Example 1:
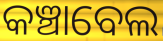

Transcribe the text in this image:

କଞ୍ଚାବେଲ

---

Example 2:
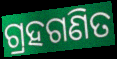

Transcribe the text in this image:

ଗ୍ରହଗଣିତ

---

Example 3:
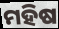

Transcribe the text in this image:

ମହିଷ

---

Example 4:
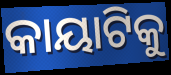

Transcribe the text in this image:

କାୟାଟିକୁ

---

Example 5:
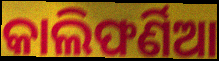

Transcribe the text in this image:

କାଲିଫର୍ଣିଆ